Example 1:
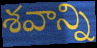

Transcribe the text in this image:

శవాన్ని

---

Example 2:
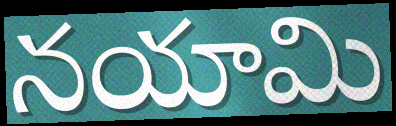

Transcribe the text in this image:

నయామి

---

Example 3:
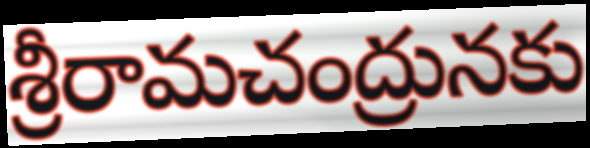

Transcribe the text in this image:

శ్రీరామచంద్రునకు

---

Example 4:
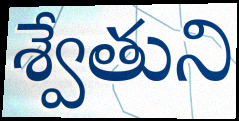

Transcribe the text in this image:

శ్వేతుని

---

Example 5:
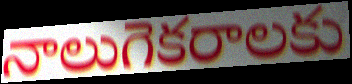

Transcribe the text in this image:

నాలుగెకరాలకు